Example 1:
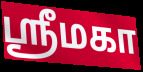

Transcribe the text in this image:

ஸ்ரீமகா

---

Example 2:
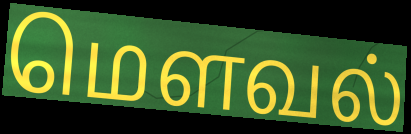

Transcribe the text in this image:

மௌவல்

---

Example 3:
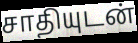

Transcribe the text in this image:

சாதியுடன்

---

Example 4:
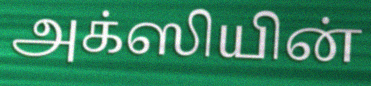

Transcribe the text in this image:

அக்ஸியின்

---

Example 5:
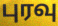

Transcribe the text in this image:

புரவு